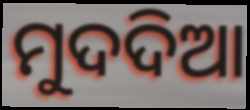
ମୁଦଦିଆ